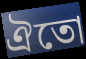
ঐতো